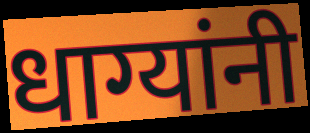
धाग्यांनी